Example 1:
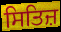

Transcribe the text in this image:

ਸਿਤਿਜ਼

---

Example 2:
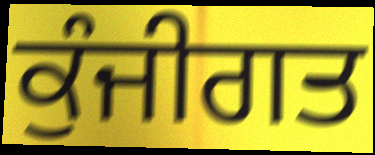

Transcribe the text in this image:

ਕੁੰਜੀਗਤ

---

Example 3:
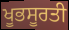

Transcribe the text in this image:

ਖੂਭਸੂਰਤੀ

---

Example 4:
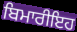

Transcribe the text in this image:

ਬਿਮਾਰੀਇਹ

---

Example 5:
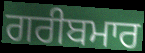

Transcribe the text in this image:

ਗਰੀਬਮਾਰ